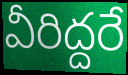
వీరిద్దరే